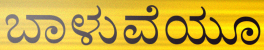
ಬಾಳುವೆಯೂ